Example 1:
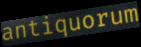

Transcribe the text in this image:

antiquorum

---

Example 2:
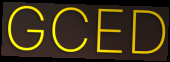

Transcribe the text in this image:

GCED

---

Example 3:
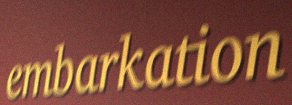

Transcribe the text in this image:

embarkation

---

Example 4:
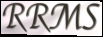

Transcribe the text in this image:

RRMS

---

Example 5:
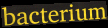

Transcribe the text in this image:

bacterium